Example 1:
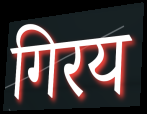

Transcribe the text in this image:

गिरय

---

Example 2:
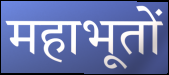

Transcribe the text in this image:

महाभूतों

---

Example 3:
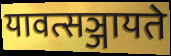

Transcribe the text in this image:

यावत्सञ्जायते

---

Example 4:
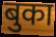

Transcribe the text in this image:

बुका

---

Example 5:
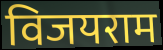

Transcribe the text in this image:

विजयराम